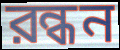
রন্ধন